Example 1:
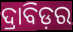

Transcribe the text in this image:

ଦ୍ରାବିଡ଼ର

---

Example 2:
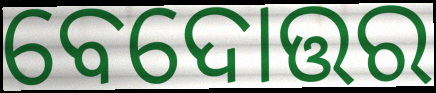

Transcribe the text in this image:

ବେଦୋତ୍ତର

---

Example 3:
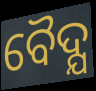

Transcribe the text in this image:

ବୈଦ୍ଯ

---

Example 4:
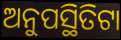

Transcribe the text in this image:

ଅନୁପସ୍ଥିତିଟା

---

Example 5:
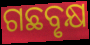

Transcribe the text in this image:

ଗଛବୃକ୍ଷ